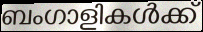
ബംഗാളികൾക്ക്